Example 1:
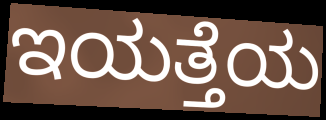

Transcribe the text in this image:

ಇಯತ್ತೆಯ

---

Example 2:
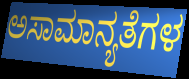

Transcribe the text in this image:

ಅಸಾಮಾನ್ಯತೆಗಳ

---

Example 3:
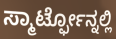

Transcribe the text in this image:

ಸ್ಮಾರ್ಟ್ಫೋನ್ನಲ್ಲಿ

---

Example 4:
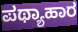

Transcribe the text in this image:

ಪಥ್ಯಾಹಾರ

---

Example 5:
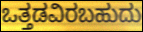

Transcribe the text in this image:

ಒತ್ತಡವಿರಬಹುದು